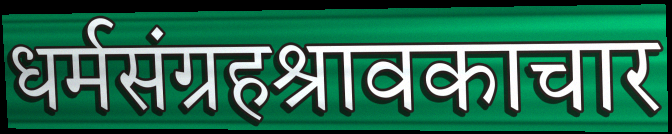
धर्मसंग्रहश्रावकाचार